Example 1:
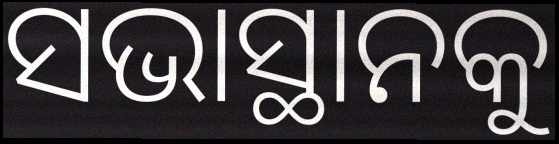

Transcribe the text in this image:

ସଭାସ୍ଥାନକୁ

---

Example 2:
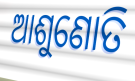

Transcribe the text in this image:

ଆଶୁଣୋତି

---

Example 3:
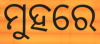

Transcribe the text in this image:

ମୁହରେ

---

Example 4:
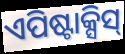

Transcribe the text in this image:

ଏପିଷ୍ଟାକ୍ସିସ୍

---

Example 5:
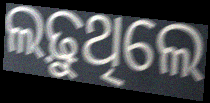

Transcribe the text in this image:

ଲଢ଼ୁଥିଲେ